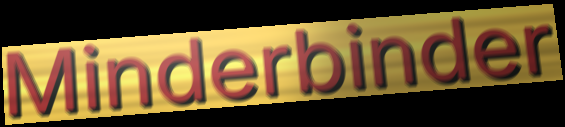
Minderbinder